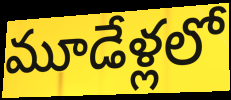
మూడేళ్లలో